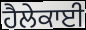
ਹੈਲੇਕਾਈ